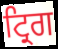
ਟ੍ਰਿਗ